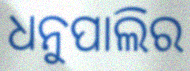
ଧନୁପାଲିର